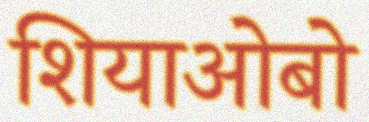
शियाओबो